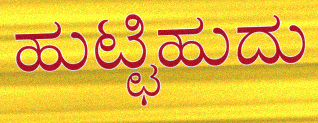
ಹುಟ್ಟಿಹುದು